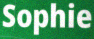
Sophie